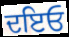
ਦਇਓ